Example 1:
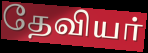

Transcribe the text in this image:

தேவியர்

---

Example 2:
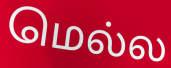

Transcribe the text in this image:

மெல்ல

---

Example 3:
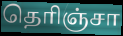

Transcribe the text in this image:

தெரிஞ்சா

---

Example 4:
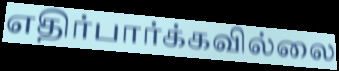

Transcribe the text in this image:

எதிர்பார்க்கவில்லை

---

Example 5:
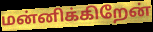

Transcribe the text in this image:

மன்னிக்கிறேன்